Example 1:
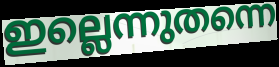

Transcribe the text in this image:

ഇല്ലെന്നുതന്നെ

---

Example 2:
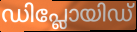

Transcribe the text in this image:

ഡിപ്ലോയിഡ്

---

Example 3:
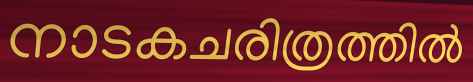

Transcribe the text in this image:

നാടകചരിത്രത്തിൽ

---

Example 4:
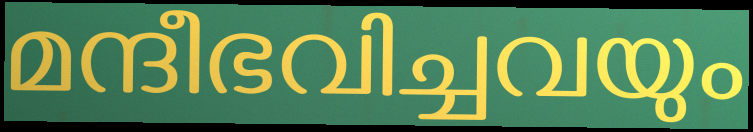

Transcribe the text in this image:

മന്ദീഭവിച്ചവയും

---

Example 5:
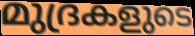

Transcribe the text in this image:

മുദ്രകളുടെ